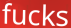
fucks